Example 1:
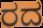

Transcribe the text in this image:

ರದ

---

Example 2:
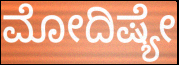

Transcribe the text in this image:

ಮೋದಿಷ್ಯೇ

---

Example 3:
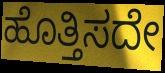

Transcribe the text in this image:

ಹೊತ್ತಿಸದೇ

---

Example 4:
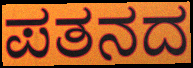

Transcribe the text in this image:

ಪತನದ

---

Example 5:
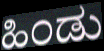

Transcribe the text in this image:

ಹಿಂಡು